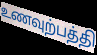
உணவுற்பத்தி